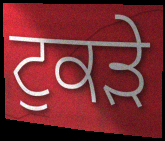
ਟੁਕੜੇ